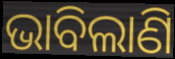
ଭାବିଲାଣି